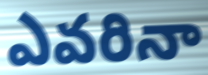
ఎవరినా